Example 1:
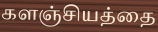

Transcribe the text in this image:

களஞ்சியத்தை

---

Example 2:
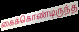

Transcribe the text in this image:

கைக்கொண்டிருந்த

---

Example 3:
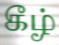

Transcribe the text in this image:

கீழ்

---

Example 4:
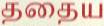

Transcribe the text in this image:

ததைய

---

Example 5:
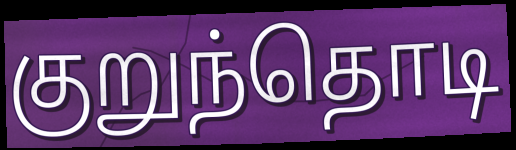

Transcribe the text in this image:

குறுந்தொடி